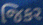
જિકર